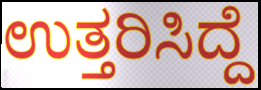
ಉತ್ತರಿಸಿದ್ದೆ